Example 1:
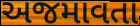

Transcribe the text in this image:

અજમાવતા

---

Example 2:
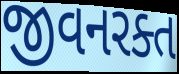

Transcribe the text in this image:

જીવનરક્ત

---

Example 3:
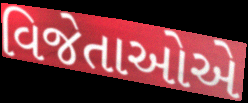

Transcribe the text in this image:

વિજેતાઓએ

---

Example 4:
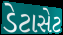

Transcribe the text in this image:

ડેટાસેટ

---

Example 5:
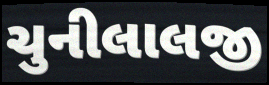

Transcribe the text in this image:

ચુનીલાલજી